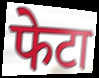
फेटा